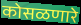
कोसळणारे